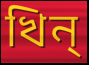
খিন্